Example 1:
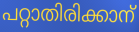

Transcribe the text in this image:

പറ്റാതിരിക്കാന്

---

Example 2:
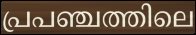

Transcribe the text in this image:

പ്രപഞ്ചത്തിലെ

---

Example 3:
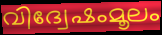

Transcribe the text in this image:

വിദ്വേഷംമൂലം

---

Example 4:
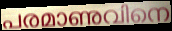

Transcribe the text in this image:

പരമാണുവിനെ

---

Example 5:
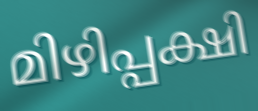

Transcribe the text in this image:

മിഴിപ്പക്ഷി